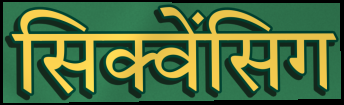
सिक्वेंसिग